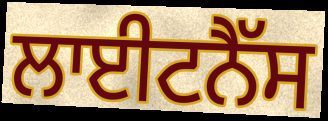
ਲਾਈਟਨੈੱਸ